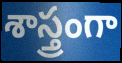
శాస్త్రంగా